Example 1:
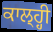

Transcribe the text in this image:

ਕਾਲ੍ਹ੍ਹੀ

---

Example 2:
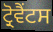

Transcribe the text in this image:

ਟ੍ਰੋਵੈਂਟਸ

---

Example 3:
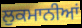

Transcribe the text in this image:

ਲੁਕਮਾਨੀਆਂ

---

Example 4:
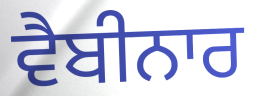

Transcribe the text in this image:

ਵੈਬੀਨਾਰ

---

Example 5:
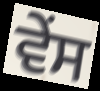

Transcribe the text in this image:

ਵੇਂਸ